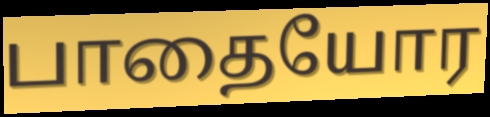
பாதையோர